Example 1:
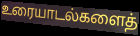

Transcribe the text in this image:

உரையாடல்களைத்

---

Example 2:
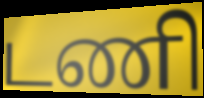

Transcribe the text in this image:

டணி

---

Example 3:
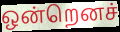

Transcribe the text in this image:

ஒன்றெனச்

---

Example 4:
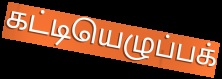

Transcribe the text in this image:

கட்டியெழுப்பக்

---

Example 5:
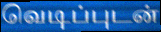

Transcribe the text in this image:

வெடிப்புடன்